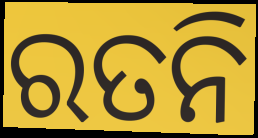
ରତନି